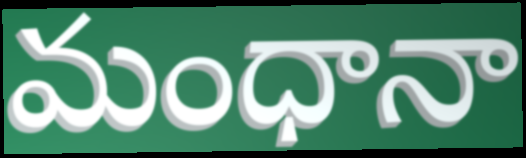
మంధానా